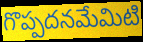
గొప్పదనమేమిటి